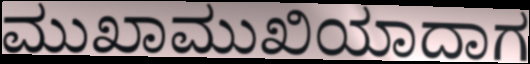
ಮುಖಾಮುಖಿಯಾದಾಗ